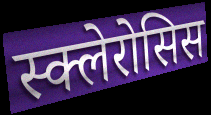
स्क्लेरोसिस